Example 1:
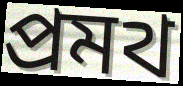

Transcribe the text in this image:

প্রমথ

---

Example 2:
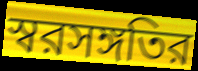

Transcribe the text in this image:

স্বরসঙ্গতির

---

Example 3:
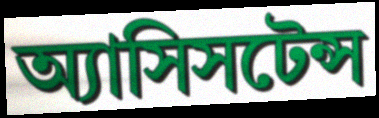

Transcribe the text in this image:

অ্যাসিসটেন্স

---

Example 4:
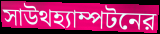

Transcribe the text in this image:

সাউথহ্যাম্পটনের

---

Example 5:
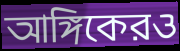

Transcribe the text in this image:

আঙ্গিকেরও